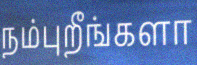
நம்புறீங்களா